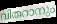
വിതറാനും